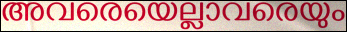
അവരെയെല്ലാവരെയും